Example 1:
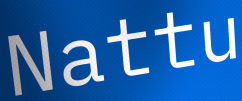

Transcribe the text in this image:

Nattu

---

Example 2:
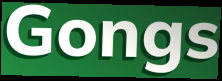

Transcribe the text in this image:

Gongs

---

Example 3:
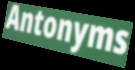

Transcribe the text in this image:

Antonyms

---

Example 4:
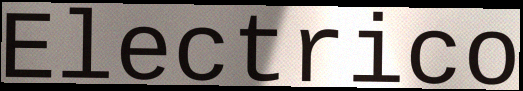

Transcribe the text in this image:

Electrico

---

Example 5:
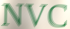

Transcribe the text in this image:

NVC